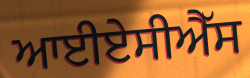
ਆਈਏਸੀਐੱਸ